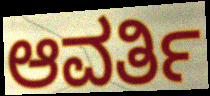
ಆವರ್ತಿ